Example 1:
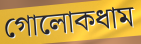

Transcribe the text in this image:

গোলোকধাম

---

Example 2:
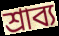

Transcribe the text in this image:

শ্রাব্য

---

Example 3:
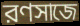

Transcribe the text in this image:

রণসাজে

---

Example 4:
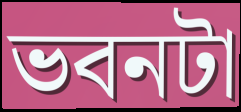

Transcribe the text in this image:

ভবনটা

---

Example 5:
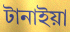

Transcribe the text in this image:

টানাইয়া